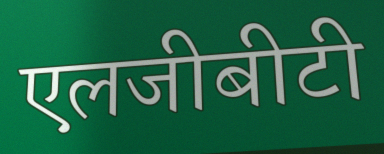
एलजीबीटी